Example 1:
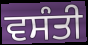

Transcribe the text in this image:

ਵਸੰਤੀ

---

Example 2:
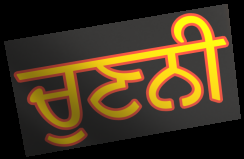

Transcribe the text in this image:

ਚੁਣਨੀ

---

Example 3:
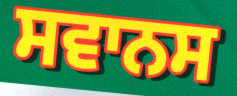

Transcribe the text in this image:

ਸਵਾਨਸ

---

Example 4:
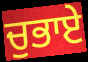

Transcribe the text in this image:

ਚੁਭਾਏ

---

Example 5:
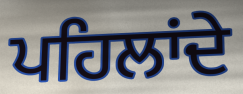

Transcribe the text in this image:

ਪਹਿਲਾਂਦੇ